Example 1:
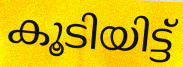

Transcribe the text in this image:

കൂടിയിട്ട്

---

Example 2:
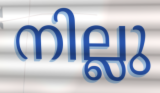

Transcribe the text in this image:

നില്ലു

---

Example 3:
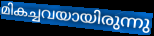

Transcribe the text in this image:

മികച്ചവയായിരുന്നു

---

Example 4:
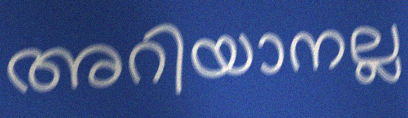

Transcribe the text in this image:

അറിയാനല്ല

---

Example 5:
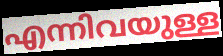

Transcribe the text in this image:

എന്നിവയുള്ള